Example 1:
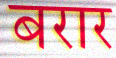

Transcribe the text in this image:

बरार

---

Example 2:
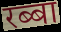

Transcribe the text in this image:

रब्बा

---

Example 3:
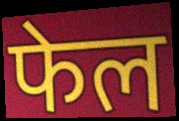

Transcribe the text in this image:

फेल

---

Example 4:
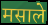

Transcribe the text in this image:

मसाले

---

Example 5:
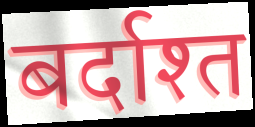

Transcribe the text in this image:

बर्दाश्त